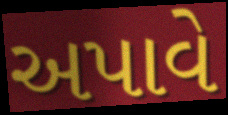
અપાવે